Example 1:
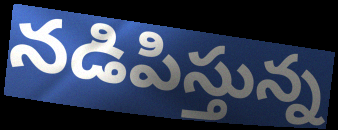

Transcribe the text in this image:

నడిపిస్తున్న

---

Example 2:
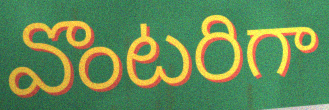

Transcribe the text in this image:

వొంటరిగా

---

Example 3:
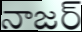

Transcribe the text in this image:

నాజర్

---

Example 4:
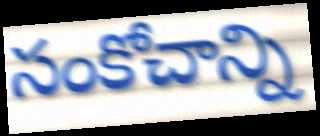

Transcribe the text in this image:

సంకోచాన్ని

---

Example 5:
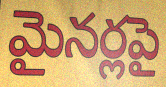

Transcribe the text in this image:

మైనర్లపై